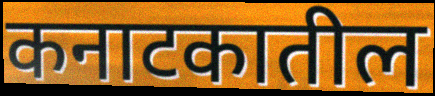
कनाटकातील